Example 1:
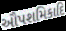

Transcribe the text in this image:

ઔપશમિકાદિ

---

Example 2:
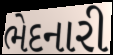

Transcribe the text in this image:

ભેદનારી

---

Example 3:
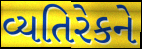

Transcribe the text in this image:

વ્યતિરેકને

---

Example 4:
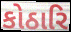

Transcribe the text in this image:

કોઠારિ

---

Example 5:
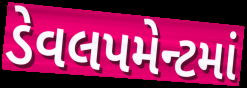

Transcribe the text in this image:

ડેવલપમેન્ટમાં